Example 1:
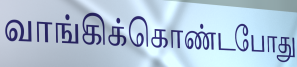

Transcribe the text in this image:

வாங்கிக்கொண்டபோது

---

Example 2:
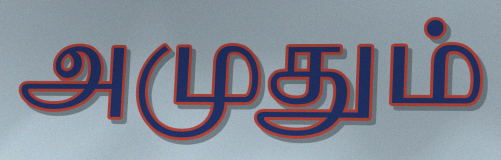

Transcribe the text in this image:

அமுதும்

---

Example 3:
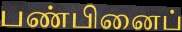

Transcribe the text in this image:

பண்பினைப்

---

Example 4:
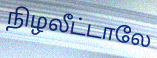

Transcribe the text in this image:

நிழலீட்டாலே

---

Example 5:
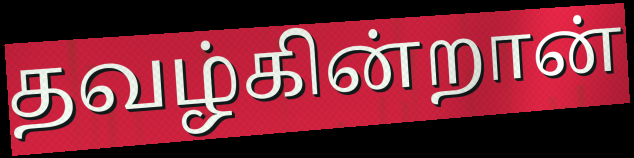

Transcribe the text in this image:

தவழ்கின்றான்